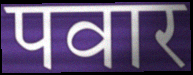
पवार